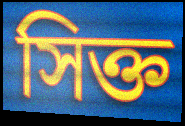
সিক্ত